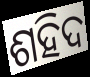
ଶହିଦ